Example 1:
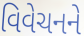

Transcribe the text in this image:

વિવેચનને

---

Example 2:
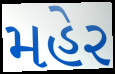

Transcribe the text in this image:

મહેર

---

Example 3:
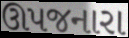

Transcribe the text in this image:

ઊપજનારા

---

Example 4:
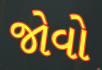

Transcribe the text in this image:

જોવો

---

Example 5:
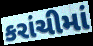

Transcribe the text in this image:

કરાંચીમાં